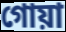
গোয়া